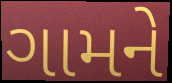
ગામને